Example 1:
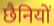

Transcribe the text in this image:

छैनियों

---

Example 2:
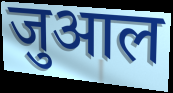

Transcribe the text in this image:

जुआल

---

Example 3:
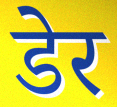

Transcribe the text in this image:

डेर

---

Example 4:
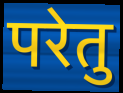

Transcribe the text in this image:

परेतु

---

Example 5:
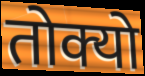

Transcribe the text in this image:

तोक्‍यो